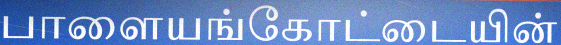
பாளையங்கோட்டையின்